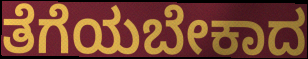
ತೆಗೆಯಬೇಕಾದ